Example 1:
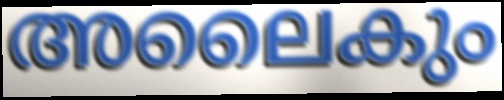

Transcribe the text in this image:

അലൈകും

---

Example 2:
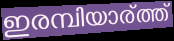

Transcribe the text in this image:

ഇരമ്പിയാര്ത്ത്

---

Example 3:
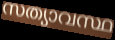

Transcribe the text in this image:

സത്യാവസ്ഥ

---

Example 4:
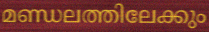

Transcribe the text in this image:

മണ്ഡലത്തിലേക്കും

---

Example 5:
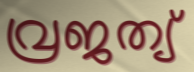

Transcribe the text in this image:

വ്രജത്യ്